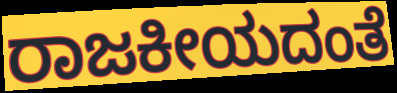
ರಾಜಕೀಯದಂತೆ